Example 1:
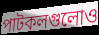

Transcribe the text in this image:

পাটকলগুলোও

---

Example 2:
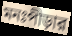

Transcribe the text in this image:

মনঃপীড়ার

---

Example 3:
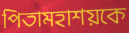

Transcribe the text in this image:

পিতামহাশয়কে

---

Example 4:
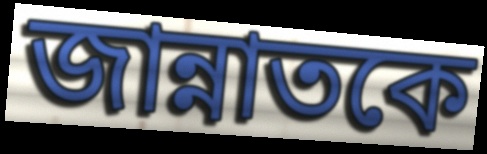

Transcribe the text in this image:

জান্নাতকে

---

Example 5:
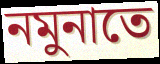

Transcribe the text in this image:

নমুনাতে